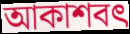
আকাশবৎ